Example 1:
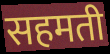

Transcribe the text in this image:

सहमती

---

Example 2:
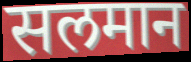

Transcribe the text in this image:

सलमान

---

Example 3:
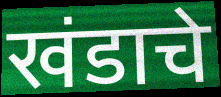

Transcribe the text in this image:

खंडाचे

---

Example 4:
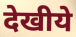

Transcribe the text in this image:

देखीये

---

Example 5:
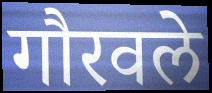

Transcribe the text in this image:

गौरवले